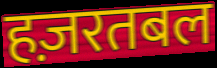
हज़रतबल